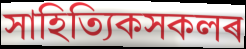
সাহিত্যিকসকলৰ